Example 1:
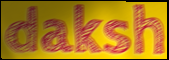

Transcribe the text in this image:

daksh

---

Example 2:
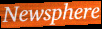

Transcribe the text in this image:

Newsphere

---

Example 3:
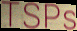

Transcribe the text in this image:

TSPs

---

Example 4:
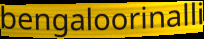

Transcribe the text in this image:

bengaloorinalli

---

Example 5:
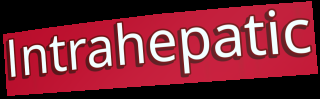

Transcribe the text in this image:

Intrahepatic